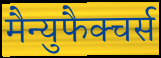
मैन्युफैक्चर्स